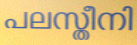
പലസ്തീനി